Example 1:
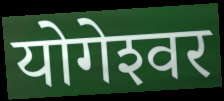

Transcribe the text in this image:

योगेश्‍वर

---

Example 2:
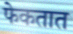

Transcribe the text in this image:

फेकतात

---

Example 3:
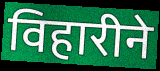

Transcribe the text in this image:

विहारीने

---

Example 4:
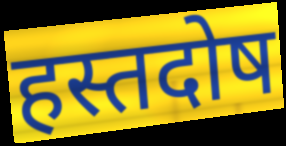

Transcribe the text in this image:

हस्तदोष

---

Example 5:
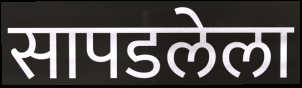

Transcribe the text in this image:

सापडलेला